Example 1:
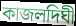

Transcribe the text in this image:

কাজলদিঘী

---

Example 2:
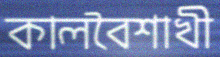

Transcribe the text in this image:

কালবৈশাখী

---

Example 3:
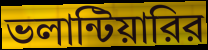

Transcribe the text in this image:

ভলান্টিয়ারির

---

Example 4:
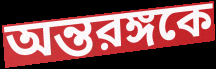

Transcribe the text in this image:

অন্তরঙ্গকে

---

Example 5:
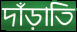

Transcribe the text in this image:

দাঁড়াতি